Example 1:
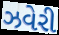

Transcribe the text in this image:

ઝવેરી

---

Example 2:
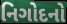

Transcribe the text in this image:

નિગોદનો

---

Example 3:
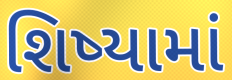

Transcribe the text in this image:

શિષ્યામાં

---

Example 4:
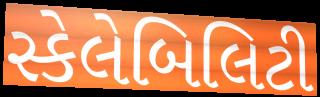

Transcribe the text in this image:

સ્કેલેબિલિટી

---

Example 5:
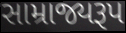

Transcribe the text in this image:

સામ્રાજ્યરૂપ